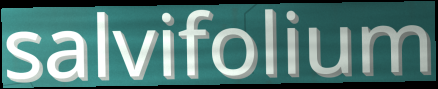
salvifolium